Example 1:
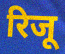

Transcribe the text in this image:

रिजू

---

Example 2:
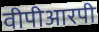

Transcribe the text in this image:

वीपीआरपी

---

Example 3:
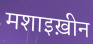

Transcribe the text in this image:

मशाइख़ीन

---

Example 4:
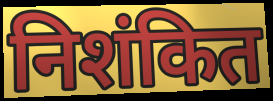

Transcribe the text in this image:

निशंकित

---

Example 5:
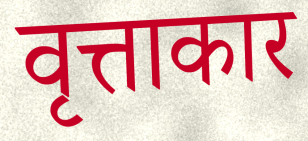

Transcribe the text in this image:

वृत्ताकार